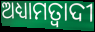
ଅଧ୍ୟାମତ୍ବାଦୀ